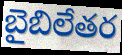
బైబిలేతర